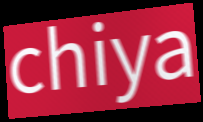
chiya